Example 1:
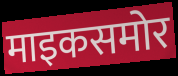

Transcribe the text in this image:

माइकसमोर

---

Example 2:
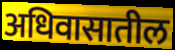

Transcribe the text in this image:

अधिवासातील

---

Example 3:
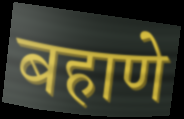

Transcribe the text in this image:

बहाणे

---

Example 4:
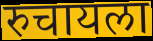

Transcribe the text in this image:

रुचायला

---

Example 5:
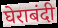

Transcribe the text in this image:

घेराबंदी